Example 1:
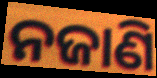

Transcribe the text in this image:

ନଜାଣି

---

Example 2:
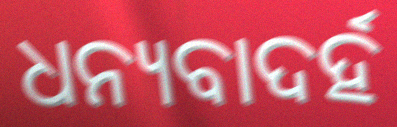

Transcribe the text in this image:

ଧନ୍ୟବାଦର୍ହ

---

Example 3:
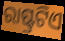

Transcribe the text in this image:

ରାଷ୍ଟ୍ରଟିଏ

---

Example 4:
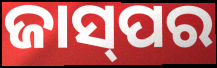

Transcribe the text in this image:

ଜାସ୍‌ପର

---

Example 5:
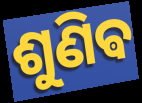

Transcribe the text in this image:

ଶୁଣିଵ